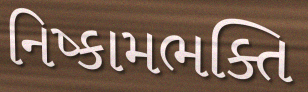
નિષ્કામભક્તિ